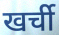
खर्ची